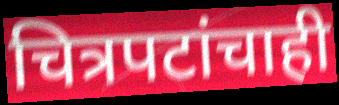
चित्रपटांचाही